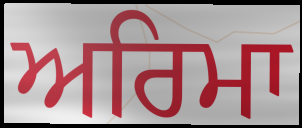
ਅਰਿਮਾ